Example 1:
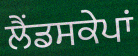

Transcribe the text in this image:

ਲੈਂਡਸਕੇਪਾਂ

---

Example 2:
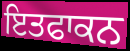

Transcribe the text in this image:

ਇਤਫਾਕਨ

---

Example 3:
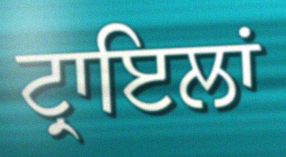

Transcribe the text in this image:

ਟ੍ਰਾਇਲਾਂ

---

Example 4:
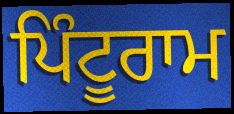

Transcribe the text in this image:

ਪਿੰਟੂਰਾਮ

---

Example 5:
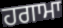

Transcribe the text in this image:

ਹਗਾਮਾ